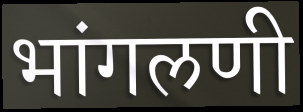
भांगलणी